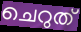
ചെറുത്